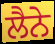
ਲੈਨੇ